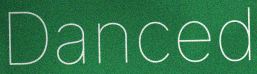
Danced